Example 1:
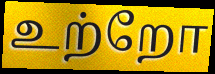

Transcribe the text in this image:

உற்றோ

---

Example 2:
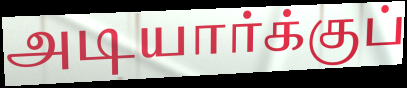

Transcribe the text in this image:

அடியார்க்குப்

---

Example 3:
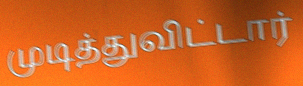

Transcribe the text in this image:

முடித்துவிட்டார்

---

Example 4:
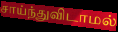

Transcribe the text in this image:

சாய்ந்துவிடாமல்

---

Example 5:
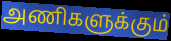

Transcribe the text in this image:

அணிகளுக்கும்